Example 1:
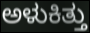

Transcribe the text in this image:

ಅಳುಕಿತ್ತು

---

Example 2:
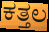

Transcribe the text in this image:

ಕತ್ತಲ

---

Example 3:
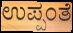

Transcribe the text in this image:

ಉಪ್ಪಂತೆ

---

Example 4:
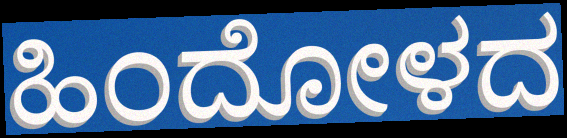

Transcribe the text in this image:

ಹಿಂದೋಳದ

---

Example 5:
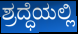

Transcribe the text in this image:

ಶ್ರದ್ಧೆಯಲ್ಲಿ